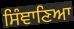
ਸਿੰਞਾਣਿਆ